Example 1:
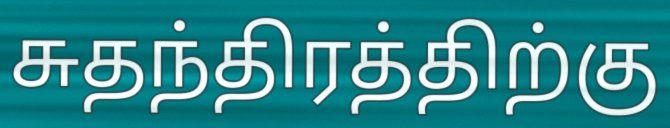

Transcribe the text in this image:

சுதந்திரத்திற்கு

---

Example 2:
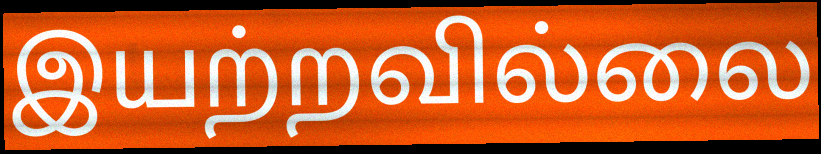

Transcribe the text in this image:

இயற்றவில்லை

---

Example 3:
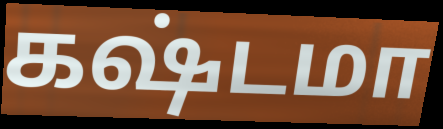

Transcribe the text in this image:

கஷ்டமா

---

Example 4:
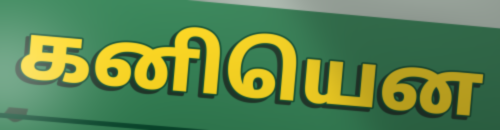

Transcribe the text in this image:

கனியென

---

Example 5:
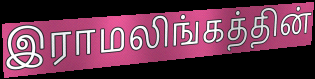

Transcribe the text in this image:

இராமலிங்கத்தின்